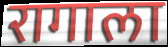
रागाला